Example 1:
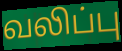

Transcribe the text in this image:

வலிப்பு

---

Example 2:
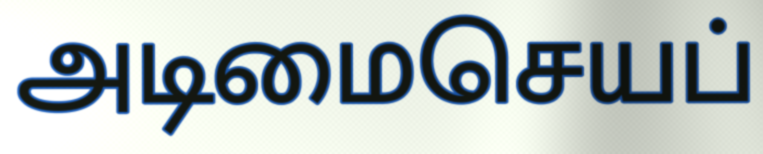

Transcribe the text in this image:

அடிமைசெயப்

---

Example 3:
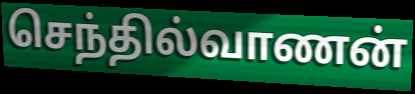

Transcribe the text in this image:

செந்தில்வாணன்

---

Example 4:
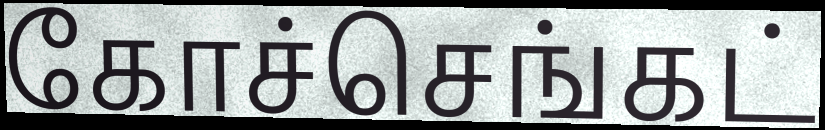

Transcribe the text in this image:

கோச்செங்கட்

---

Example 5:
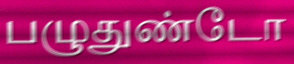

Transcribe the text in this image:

பழுதுண்டோ